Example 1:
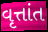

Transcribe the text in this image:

વૃત્તાંત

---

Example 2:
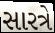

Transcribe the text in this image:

સારત્રે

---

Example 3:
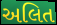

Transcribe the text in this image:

અલિત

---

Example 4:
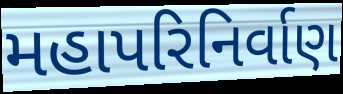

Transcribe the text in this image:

મહાપરિનિર્વાણ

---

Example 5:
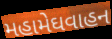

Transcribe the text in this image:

મહામેઘવાહન